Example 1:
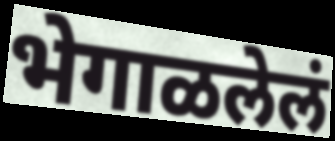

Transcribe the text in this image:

भेगाळलेलं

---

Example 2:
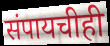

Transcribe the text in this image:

संपायचीही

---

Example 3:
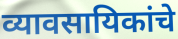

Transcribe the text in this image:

व्यावसायिकांचे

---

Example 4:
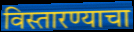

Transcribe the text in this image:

विस्तारण्याचा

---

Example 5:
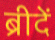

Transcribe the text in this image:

ब्रीदें